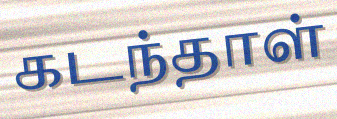
கடந்தாள்